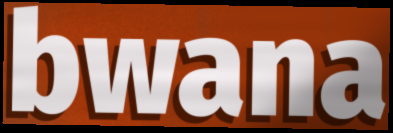
bwana